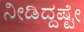
ನೀಡಿದ್ದಷ್ಟೇ